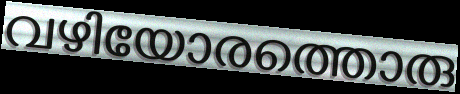
വഴിയോരത്തൊരു